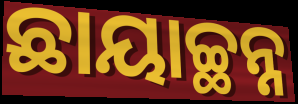
ଛାୟାଚ୍ଛନ୍ନ